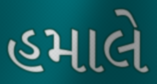
હમાલે